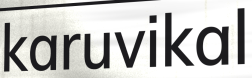
karuvikal